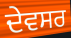
ਦੇਵਸਰ